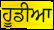
ਹੂਡੀਆ